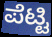
ಪೆಟ್ಟಿ